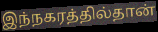
இந்நகரத்தில்தான்